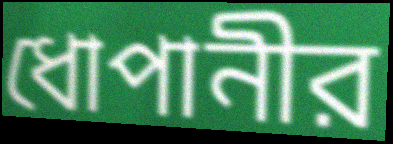
ধোপানীর